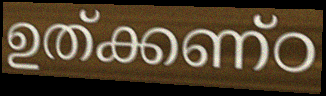
ഉത്ക്കണ്ഠ